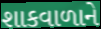
શાકવાળાને